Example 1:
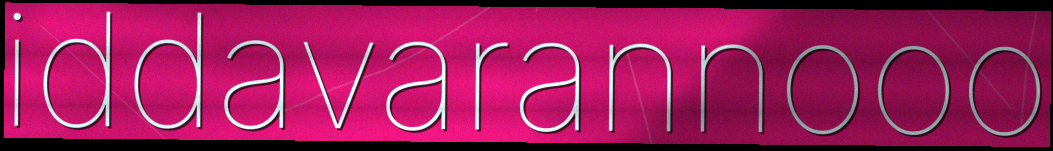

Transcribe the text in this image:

iddavarannooo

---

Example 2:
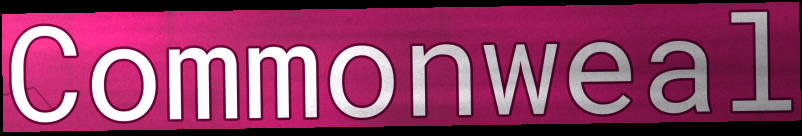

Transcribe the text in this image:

Commonweal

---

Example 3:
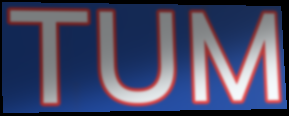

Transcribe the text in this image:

TUM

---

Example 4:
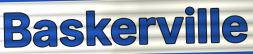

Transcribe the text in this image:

Baskerville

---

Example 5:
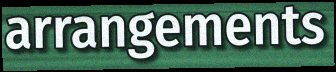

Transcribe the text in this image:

arrangements